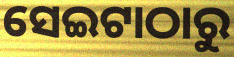
ସେଇଟାଠାରୁ